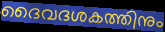
ദൈവദശകത്തിനും